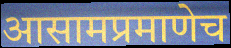
आसामप्रमाणेच